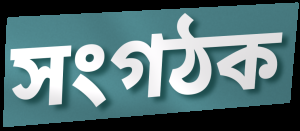
সংগঠক